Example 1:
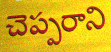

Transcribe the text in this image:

చెప్పరాని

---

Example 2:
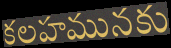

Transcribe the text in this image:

కలహమునకు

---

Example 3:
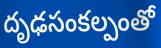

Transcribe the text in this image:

దృఢసంకల్పంతో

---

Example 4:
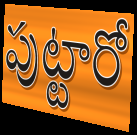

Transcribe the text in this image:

పుట్టారో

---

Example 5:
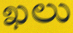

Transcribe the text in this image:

ఖలు